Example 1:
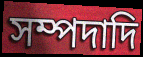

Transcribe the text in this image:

সম্পদাদি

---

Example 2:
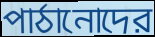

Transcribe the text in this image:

পাঠানোদের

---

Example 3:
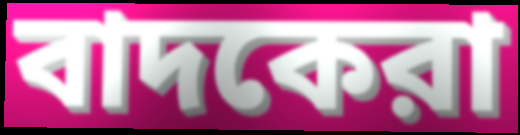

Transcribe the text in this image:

বাদকেরা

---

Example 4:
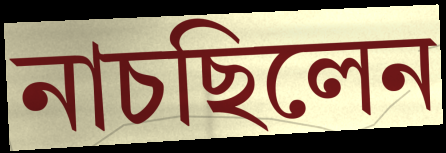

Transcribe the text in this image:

নাচছিলেন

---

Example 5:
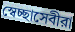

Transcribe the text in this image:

স্বেচ্ছাসেবীরা